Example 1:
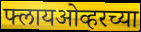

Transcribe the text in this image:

फ्लायओव्हरच्या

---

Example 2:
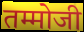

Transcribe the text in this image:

तम्मोजी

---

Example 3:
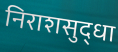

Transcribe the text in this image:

निराशसुद्धा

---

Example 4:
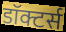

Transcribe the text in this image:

डॉक्टर्स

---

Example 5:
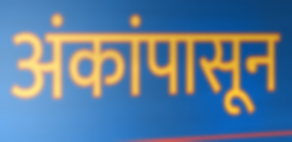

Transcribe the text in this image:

अंकांपासून